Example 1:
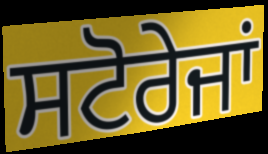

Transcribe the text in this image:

ਸਟੋਰੇਜਾਂ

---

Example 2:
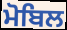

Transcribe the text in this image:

ਮੋਬਿਲ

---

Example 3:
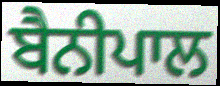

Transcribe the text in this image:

ਬੈਨੀਪਾਲ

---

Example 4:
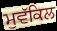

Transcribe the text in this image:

ਮੁਵੱਕਿਲ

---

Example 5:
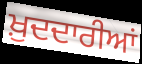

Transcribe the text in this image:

ਖ਼ੁਦਦਾਰੀਆਂ